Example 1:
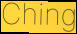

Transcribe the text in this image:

Ching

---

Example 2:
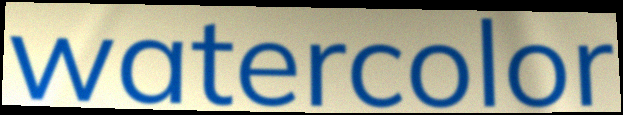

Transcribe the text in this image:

watercolor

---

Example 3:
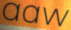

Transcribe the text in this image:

aaw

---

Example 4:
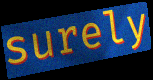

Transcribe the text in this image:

surely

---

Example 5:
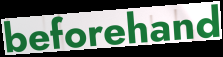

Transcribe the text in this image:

beforehand